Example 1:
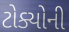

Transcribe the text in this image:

ટોક્યોની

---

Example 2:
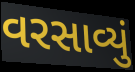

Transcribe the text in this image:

વરસાવ્યું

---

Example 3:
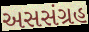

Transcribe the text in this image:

અસસંગ્રહ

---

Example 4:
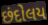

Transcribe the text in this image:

છંદોલય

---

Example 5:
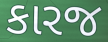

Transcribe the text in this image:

કારજ